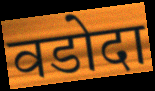
वडोदा